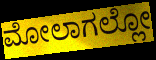
ಮೋಲಾಗಲ್ಲೋ